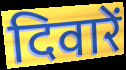
दिवारें